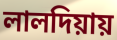
লালদিয়ায়